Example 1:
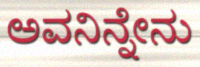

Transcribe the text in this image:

ಅವನಿನ್ನೇನು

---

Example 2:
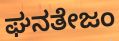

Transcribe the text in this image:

ಘನತೇಜಂ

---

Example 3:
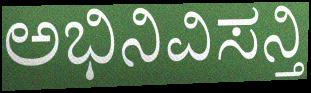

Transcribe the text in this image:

ಅಭಿನಿವಿಸನ್ತಿ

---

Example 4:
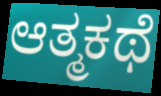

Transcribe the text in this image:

ಆತ್ಮಕಥೆ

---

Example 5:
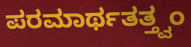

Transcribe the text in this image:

ಪರಮಾರ್ಥತತ್ತ್ವಂ